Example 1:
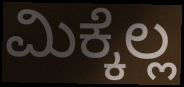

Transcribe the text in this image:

ಮಿಕ್ಕೆಲ್ಲ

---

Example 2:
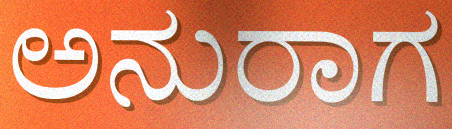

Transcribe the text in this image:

ಅನುರಾಗ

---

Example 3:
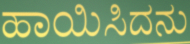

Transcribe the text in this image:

ಹಾಯಿಸಿದನು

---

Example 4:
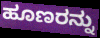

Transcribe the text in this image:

ಹೂಣರನ್ನು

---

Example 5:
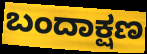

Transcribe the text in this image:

ಬಂದಾಕ್ಷಣ